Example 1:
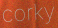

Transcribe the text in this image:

corky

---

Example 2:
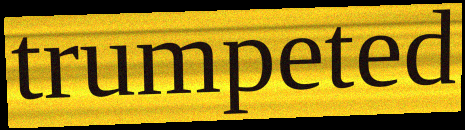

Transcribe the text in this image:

trumpeted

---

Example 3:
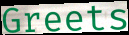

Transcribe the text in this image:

Greets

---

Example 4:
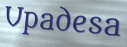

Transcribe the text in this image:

Upadesa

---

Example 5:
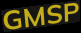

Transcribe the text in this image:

GMSP